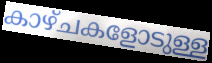
കാഴ്ചകളോടുള്ള